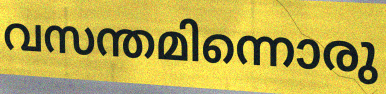
വസന്തമിന്നൊരു